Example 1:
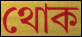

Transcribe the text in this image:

থোক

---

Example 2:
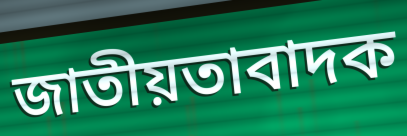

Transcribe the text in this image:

জাতীয়তাবাদক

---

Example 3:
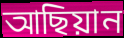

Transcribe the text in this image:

আছিয়ান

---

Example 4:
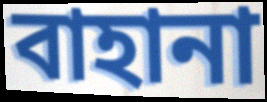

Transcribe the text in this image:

বাহানা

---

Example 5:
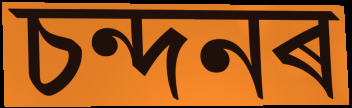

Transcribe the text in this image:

চন্দনৰ